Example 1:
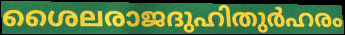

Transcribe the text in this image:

ശൈലരാജദുഹിതുർഹരം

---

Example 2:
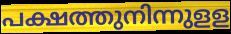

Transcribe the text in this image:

പക്ഷത്തുനിന്നുളള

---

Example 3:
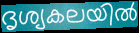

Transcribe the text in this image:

ദൃശ്യകലയിൽ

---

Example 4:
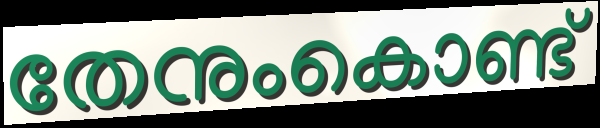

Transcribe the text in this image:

തേനുംകൊണ്ട്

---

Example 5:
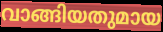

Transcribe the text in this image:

വാങ്ങിയതുമായ